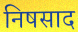
निषसाद